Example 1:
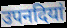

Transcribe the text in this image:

उपनदियां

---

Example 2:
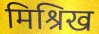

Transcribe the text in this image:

मिश्रिख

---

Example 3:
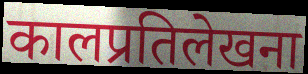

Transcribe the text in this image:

कालप्रतिलेखना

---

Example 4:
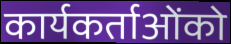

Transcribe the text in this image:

कार्यकर्ताओंको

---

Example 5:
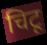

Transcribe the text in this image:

चिटू